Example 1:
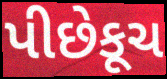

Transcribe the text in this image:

પીછેકૂચ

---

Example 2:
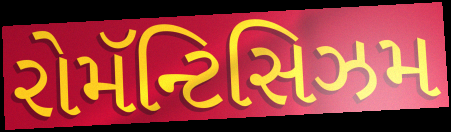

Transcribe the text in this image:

રોમૅન્ટિસિઝમ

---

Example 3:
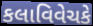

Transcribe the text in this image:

કલાવિવેચકે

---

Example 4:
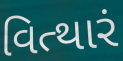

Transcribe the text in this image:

વિત્થારં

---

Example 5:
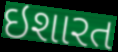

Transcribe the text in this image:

ઇશારત